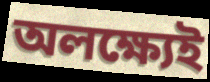
অলক্ষ্যেই